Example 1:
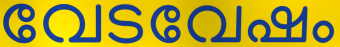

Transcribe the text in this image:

വേടവേഷം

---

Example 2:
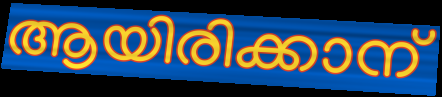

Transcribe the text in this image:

ആയിരിക്കാന്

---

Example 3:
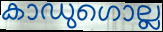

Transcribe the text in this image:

കാഡുഗൊല്ല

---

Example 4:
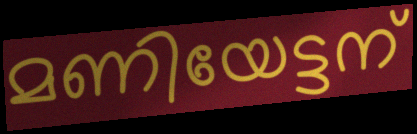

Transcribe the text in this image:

മണിയേട്ടന്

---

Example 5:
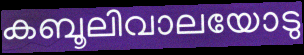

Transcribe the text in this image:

കബൂലിവാലയോടു